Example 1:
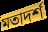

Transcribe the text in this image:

মতাদৰ্শ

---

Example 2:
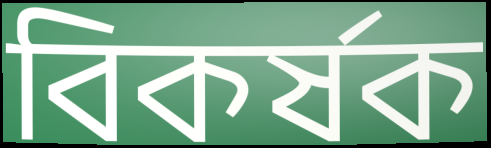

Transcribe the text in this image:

বিকৰ্ষক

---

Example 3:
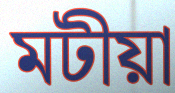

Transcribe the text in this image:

মটীয়া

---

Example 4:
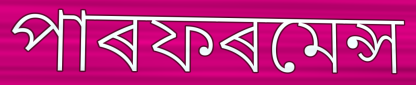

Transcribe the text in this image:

পাৰফৰমেন্স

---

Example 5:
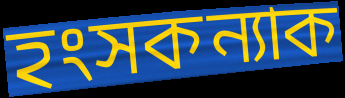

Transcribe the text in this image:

হংসকন্যাক